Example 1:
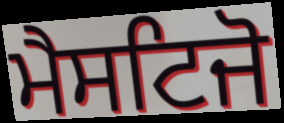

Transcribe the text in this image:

ਮੈਸਟਿਜੋ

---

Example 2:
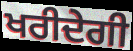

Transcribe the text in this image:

ਖਰੀਦੇਗੀ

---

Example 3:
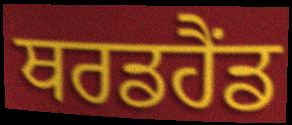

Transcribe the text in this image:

ਥਰਡਹੈਂਡ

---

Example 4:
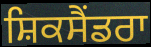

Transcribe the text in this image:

ਸ਼ਿਕਸੈਂਡਰਾ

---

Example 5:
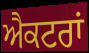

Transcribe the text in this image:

ਐਕਟਰਾਂ